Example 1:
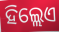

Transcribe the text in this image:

ହିଲ୍ଲେଏ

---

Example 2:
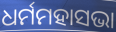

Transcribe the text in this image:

ଧର୍ମମହାସଭା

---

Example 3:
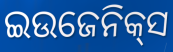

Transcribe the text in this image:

ଇଉଜେନିକ୍‌ସ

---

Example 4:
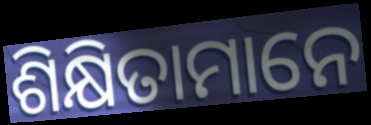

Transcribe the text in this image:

ଶିକ୍ଷିତାମାନେ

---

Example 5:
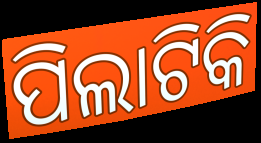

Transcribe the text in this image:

ପିଲାଟିକି